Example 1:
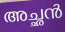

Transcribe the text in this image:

അച്ഛൻ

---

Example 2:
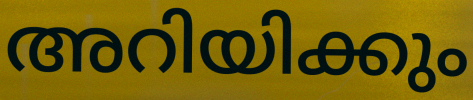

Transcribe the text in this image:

അറിയിക്കും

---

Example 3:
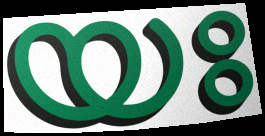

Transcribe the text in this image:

യഃ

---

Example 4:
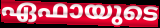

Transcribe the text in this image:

ഏഫായുടെ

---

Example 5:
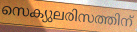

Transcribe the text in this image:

സെക്യുലരിസത്തിന്